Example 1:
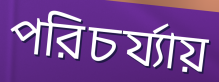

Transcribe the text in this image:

পরিচর্য্যায়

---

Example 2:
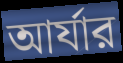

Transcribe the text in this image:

আর্যার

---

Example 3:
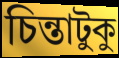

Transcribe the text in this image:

চিন্তাটুকু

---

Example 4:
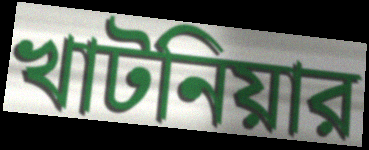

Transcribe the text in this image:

খাটনিয়ার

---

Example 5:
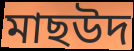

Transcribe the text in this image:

মাছউদ